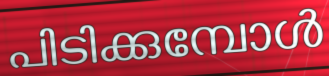
പിടിക്കുമ്പോൾ